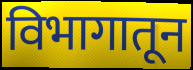
विभागातून